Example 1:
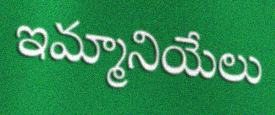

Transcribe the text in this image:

ఇమ్మానియేలు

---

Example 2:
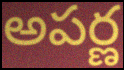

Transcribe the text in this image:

అపర్ణ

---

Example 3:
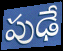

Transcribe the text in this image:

పుఢే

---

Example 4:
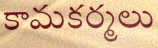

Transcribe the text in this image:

కామకర్మలు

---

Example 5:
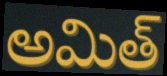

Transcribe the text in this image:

అమిత్